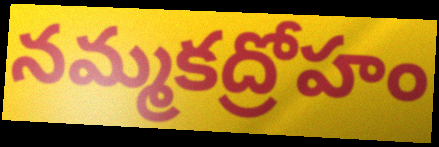
నమ్మకద్రోహం